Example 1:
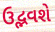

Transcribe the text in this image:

ઉદ્ભવશે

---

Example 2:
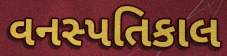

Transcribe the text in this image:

વનસ્પતિકાલ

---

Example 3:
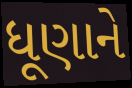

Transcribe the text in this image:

ધૂણાને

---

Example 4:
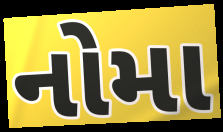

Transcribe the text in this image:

નોમા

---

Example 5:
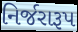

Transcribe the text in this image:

નિર્જરારૂપ